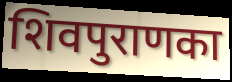
शिवपुराणका